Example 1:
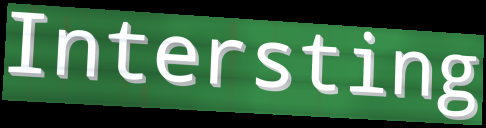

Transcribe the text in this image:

Intersting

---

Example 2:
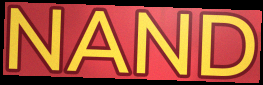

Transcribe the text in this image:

NAND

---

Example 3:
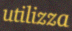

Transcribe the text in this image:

utilizza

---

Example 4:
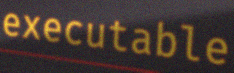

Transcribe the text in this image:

executable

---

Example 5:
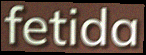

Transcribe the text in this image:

fetida